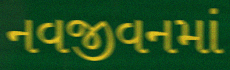
નવજીવનમાં